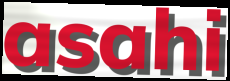
asahi